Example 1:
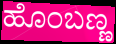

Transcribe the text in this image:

ಹೊಂಬಣ್ಣ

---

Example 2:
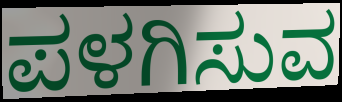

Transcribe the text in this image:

ಪಳಗಿಸುವ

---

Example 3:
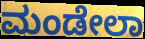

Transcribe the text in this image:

ಮಂಡೇಲಾ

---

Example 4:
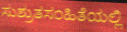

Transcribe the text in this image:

ಸುಶ್ರುತಸಂಹಿತೆಯಲ್ಲಿ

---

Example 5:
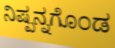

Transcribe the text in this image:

ನಿಷ್ಪನ್ನಗೊಂಡ